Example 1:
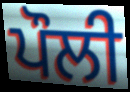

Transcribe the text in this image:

ਪੌਲੀ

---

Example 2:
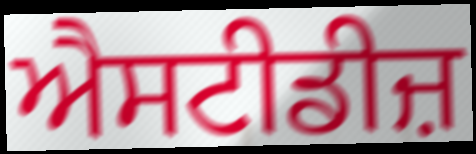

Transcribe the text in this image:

ਐਸਟੀਡੀਜ਼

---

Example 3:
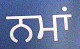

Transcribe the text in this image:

ਨਮਾਂ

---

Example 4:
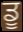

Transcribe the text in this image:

ਡੂ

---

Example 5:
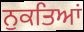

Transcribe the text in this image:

ਨੁਕਤਿਆਂ